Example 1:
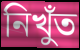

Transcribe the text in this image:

নিখুঁত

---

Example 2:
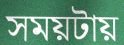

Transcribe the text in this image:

সময়টায়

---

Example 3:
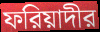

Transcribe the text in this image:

ফরিয়াদীর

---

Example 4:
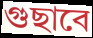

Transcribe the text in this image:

গুছাবে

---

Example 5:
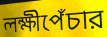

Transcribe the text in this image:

লক্ষীপেঁচার